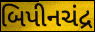
બિપીનચંદ્ર